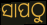
ସାପଠୁ